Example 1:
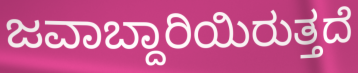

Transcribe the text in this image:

ಜವಾಬ್ದಾರಿಯಿರುತ್ತದೆ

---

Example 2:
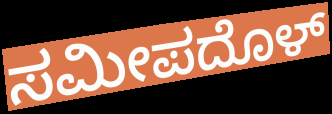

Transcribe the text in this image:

ಸಮೀಪದೊಳ್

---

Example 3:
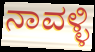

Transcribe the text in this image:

ನಾವಳ್ಳಿ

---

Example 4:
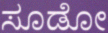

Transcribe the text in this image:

ಸೂಡೋ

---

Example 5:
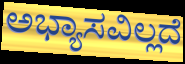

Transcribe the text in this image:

ಅಭ್ಯಾಸವಿಲ್ಲದೆ